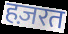
हज़रत